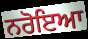
ਨਰੋਇਆ